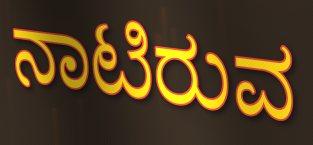
ನಾಟಿರುವ